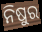
ନିଷୁର